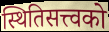
स्थितिसत्त्वको